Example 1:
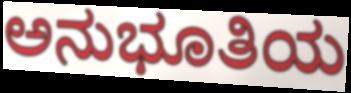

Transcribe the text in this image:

ಅನುಭೂತಿಯ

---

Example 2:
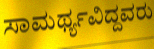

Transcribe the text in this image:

ಸಾಮರ್ಥ್ಯವಿದ್ದವರು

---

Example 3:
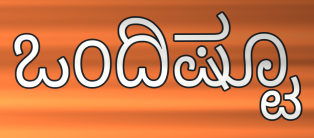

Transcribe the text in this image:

ಒಂದಿಷ್ಟೂ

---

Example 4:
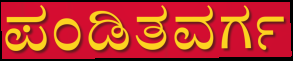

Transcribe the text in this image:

ಪಂಡಿತವರ್ಗ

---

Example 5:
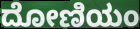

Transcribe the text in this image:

ದೋಣಿಯಂ